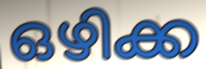
ഒഴിക്ക